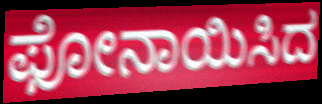
ಫೋನಾಯಿಸಿದ